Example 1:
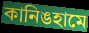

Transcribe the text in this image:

কানিঙহামে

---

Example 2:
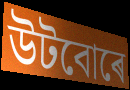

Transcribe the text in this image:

উটবোৰে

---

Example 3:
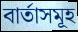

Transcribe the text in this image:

বাৰ্তাসমূহ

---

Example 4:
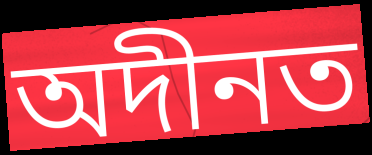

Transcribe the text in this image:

অদীনত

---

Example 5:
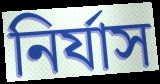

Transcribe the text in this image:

নিৰ্যাস